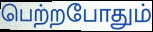
பெற்றபோதும்